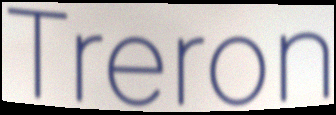
Treron